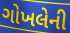
ગોખલેની